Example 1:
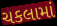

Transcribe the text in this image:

ચકલામાં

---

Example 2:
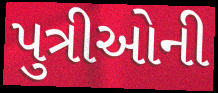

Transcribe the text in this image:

પુત્રીઓની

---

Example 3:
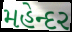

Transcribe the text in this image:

મહેન્દર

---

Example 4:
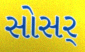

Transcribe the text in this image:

સોસર્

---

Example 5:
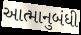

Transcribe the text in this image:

આત્માનુબંધી